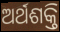
ଅର୍ଥଶକ୍ତି